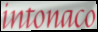
intonaco